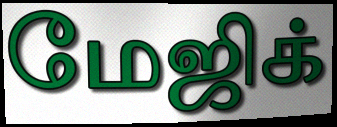
மேஜிக்